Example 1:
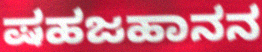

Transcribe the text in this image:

ಷಹಜಹಾನನ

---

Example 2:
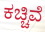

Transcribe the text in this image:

ಕಚ್ಚಿವೆ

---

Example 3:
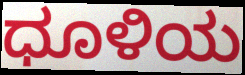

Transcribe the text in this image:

ಧೂಳಿಯ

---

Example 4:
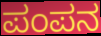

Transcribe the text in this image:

ಪಂಪನ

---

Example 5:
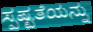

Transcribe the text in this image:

ಸ್ಪಷ್ಟತೆಯನ್ನು